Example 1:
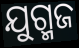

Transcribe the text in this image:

ଯୁଗ୍ମଜ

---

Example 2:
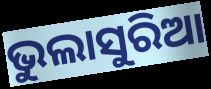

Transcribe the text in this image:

ଭୁଲାସୁରିଆ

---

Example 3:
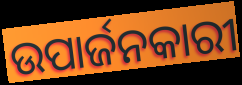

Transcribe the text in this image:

ଉପାର୍ଜନକାରୀ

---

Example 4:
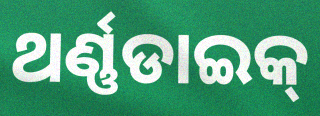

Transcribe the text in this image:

ଥର୍ଣ୍ଣଡାଇକ୍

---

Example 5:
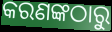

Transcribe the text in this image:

କରଣଙ୍କଠାରୁ